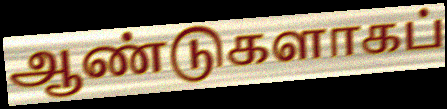
ஆண்டுகளாகப்